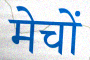
मेचों